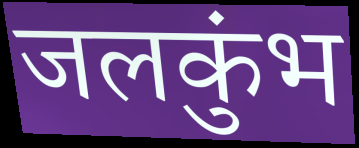
जलकुंभ